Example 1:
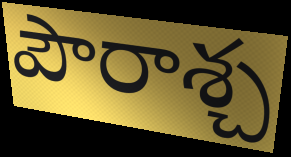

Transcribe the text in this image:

పౌరాశ్చ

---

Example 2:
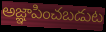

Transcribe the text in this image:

అజ్ఞాపించబడుట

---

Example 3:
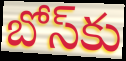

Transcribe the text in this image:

బోస్‌కు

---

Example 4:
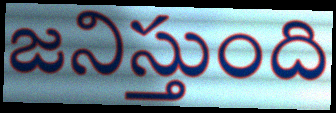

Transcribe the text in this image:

జనిస్తుంది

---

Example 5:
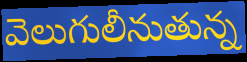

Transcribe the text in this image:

వెలుగులీనుతున్న